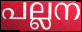
പല്ലന